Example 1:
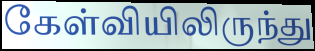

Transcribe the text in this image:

கேள்வியிலிருந்து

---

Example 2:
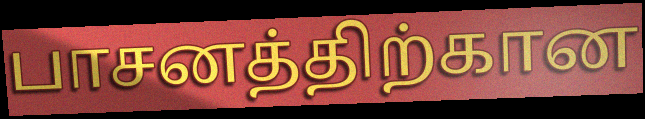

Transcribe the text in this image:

பாசனத்திற்கான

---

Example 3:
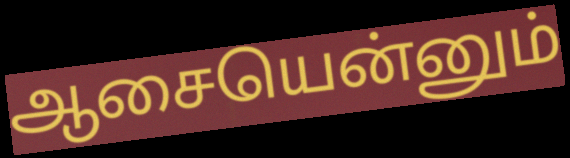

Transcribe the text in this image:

ஆசையென்னும்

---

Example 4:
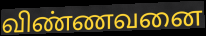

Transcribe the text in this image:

விண்ணவனை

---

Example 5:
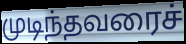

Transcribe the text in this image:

முடிந்தவரைச்